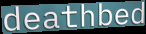
deathbed